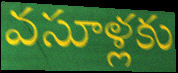
వసూళ్లకు